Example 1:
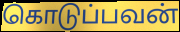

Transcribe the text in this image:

கொடுப்பவன்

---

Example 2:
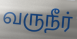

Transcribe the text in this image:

வருநீர்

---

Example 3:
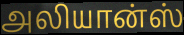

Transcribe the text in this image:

அலியான்ஸ்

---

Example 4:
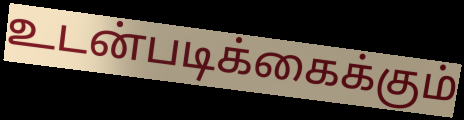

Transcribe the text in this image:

உடன்படிக்கைக்கும்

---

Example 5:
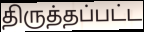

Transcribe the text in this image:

திருத்தப்பட்ட